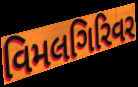
વિમલગિરિવર